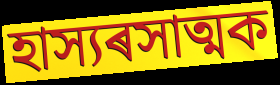
হাস্যৰসাত্মক